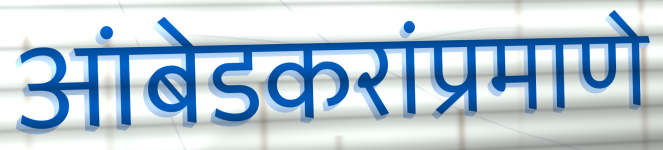
आंबेडकरांप्रमाणे